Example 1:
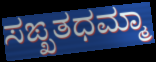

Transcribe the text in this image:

ಸಙ್ಖತಧಮ್ಮಾ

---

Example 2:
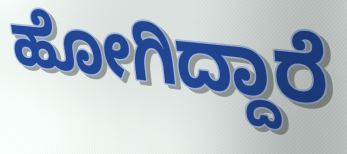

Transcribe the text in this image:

ಹೋಗಿದ್ದಾರೆ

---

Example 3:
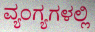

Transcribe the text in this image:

ವ್ಯಂಗ್ಯಗಳಲ್ಲಿ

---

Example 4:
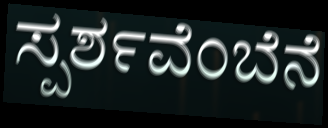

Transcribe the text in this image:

ಸ್ಪರ್ಶವೆಂಬೆನೆ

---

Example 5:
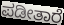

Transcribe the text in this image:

ಪಡೀತಾರೆ